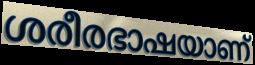
ശരീരഭാഷയാണ്